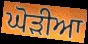
ਘੋੜੀਆ